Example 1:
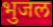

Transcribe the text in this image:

भुजल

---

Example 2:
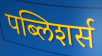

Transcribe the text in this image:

पब्लिशर्स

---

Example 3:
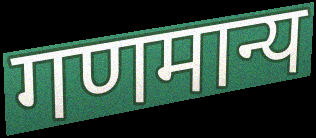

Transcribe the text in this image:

गणमान्य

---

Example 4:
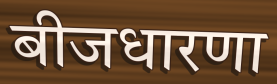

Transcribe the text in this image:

बीजधारणा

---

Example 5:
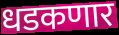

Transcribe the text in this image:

धडकणार